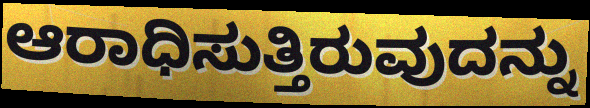
ಆರಾಧಿಸುತ್ತಿರುವುದನ್ನು